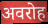
अवरोह